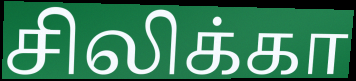
சிலிக்கா